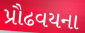
પ્રૌઢવયના